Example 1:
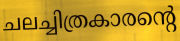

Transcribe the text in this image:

ചലച്ചിത്രകാരന്റെ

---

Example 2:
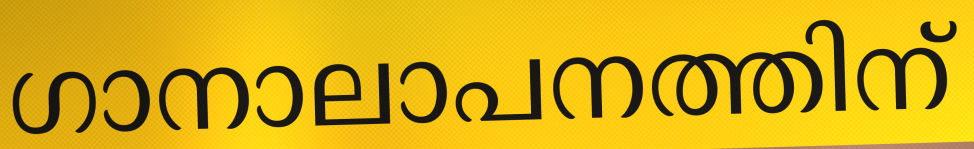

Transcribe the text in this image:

ഗാനാലാപനത്തിന്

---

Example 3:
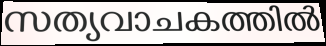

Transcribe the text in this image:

സത്യവാചകത്തിൽ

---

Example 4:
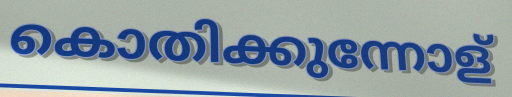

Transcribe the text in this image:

കൊതിക്കുന്നോള്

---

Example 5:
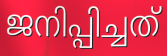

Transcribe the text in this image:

ജനിപ്പിച്ചത്